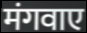
मंगवाए